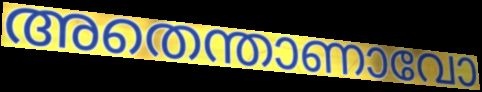
അതെന്താണാവോ